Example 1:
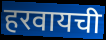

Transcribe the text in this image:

हरवायची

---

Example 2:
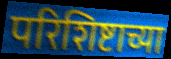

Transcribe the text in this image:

परिशिष्टाच्या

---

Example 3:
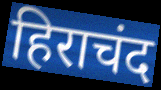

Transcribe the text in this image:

हिराचंद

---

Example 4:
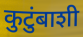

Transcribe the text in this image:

कुटुंबाशी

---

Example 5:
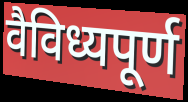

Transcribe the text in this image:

वैविध्यपूर्ण